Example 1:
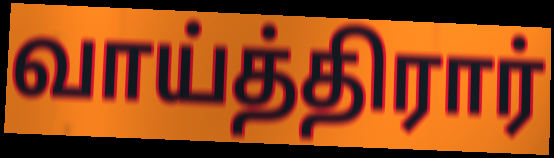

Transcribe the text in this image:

வாய்த்திரார்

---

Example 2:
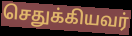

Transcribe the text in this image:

செதுக்கியவர்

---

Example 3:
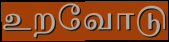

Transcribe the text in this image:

உறவோடு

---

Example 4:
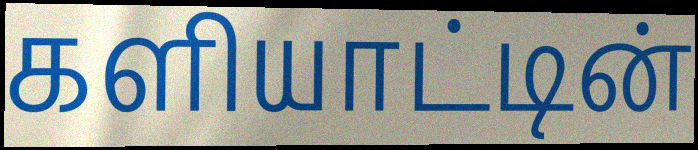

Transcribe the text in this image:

களியாட்டின்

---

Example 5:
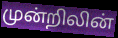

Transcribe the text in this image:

முன்றிலின்